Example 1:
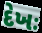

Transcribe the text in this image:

દેખઃ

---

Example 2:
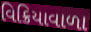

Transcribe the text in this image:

વિક્રિયાવાળા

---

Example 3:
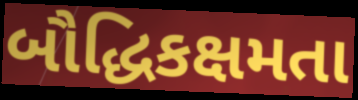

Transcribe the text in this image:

બૌદ્ધિકક્ષમતા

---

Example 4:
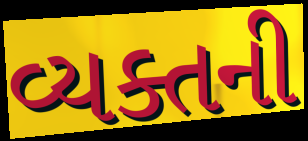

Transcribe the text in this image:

વ્યક્તની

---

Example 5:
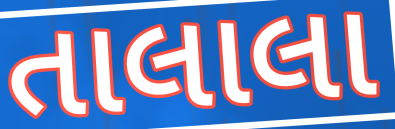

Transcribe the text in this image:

તાલાલા